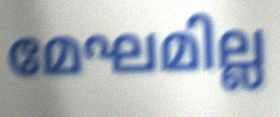
മേഘമില്ല